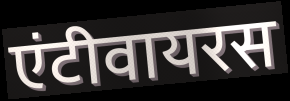
एंटीवायरस